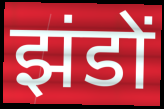
झंडों